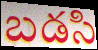
బడసి